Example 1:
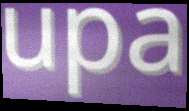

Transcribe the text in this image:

upa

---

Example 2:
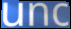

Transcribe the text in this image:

unc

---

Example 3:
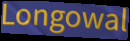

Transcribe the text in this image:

Longowal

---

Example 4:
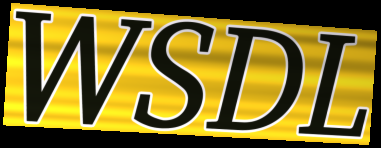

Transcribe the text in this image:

WSDL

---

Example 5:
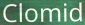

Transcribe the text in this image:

Clomid